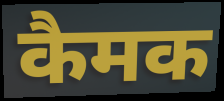
कैमक